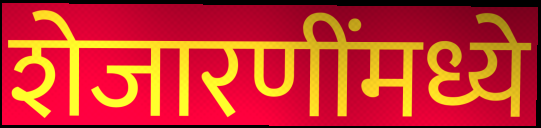
शेजारणींमध्ये